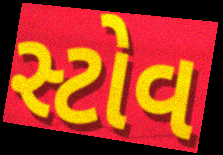
સ્ટોવ